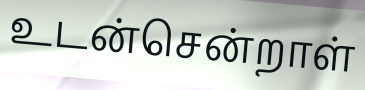
உடன்சென்றாள்